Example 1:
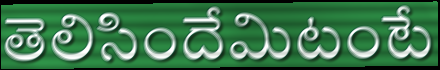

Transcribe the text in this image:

తెలిసిందేమిటంటే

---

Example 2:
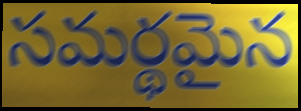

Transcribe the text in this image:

సమర్థమైన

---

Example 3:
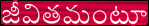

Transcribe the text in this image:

జీవితమంటూ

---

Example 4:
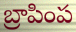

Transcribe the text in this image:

బ్రాపింప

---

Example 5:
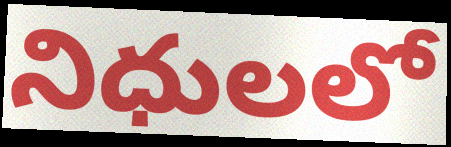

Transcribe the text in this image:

నిధులలో